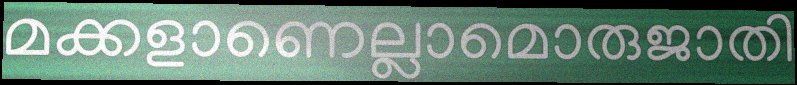
മക്കളാണെല്ലാമൊരുജാതി